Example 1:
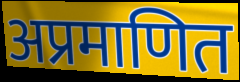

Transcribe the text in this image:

अप्रमाणित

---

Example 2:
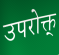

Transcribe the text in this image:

उपरोक्त्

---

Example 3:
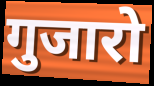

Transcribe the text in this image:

गुजारो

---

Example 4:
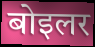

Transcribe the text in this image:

बोइलर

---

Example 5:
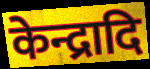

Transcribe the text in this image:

केन्द्रादि